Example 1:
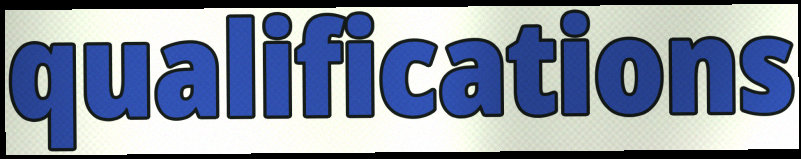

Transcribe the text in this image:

qualifications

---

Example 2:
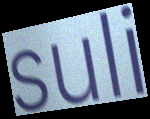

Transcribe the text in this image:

suli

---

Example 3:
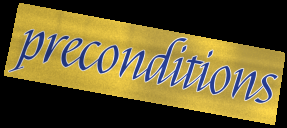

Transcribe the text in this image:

preconditions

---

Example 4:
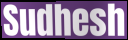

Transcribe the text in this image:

Sudhesh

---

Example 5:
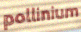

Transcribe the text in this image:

pollinium